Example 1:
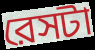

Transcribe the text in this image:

রেসটা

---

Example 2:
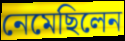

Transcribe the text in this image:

নেমেছিলেন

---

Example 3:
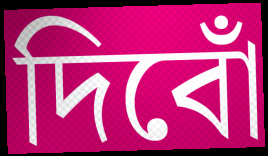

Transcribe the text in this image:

দিবোঁ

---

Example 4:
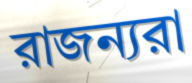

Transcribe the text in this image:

রাজন্যরা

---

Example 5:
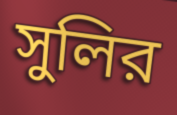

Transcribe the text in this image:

সুলির